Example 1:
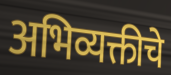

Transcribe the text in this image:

अभिव्यक्तीचे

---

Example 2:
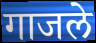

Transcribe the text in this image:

गाजले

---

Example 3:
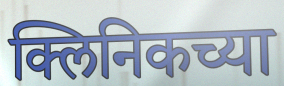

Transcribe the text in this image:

क्लिनिकच्या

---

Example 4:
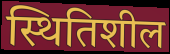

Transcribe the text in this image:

स्थितिशील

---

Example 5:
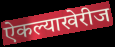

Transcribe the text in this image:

ऐकल्याखेरीज